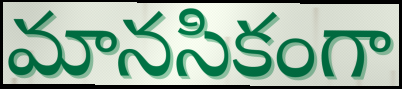
మానసికంగా